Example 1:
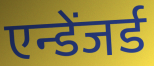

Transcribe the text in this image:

एन्डेंजर्ड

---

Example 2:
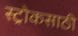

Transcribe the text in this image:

स्ट्रोकसाठी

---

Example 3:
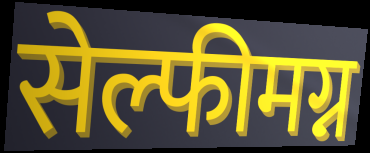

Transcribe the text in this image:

सेल्फीमग्न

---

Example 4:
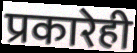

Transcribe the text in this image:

प्रकारेही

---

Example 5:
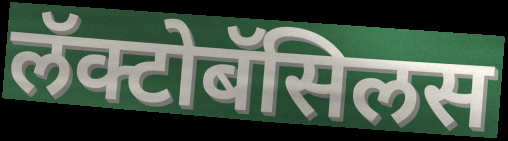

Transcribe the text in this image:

लॅक्टोबॅसिलस